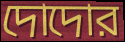
দোদোর